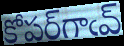
కోపర్‌గాఁవ్